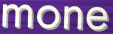
mone